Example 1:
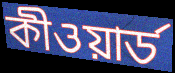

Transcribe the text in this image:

কীওয়ার্ড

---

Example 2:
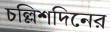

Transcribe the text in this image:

চল্লিশদিনের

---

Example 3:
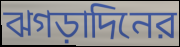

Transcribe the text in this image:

ঝগড়াদিনের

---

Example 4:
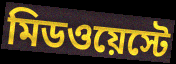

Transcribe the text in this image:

মিডওয়েস্টে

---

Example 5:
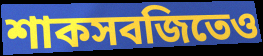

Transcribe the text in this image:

শাকসবজিতেও